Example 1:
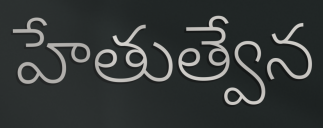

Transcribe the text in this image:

హేతుత్వేన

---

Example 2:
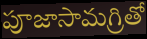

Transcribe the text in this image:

పూజాసామగ్రితో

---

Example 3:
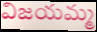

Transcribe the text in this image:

విజయమ్మ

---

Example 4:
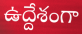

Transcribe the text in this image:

ఉద్దేశంగా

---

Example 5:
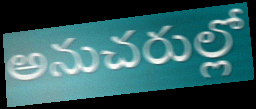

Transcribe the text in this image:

అనుచరుల్లో